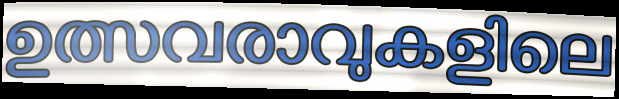
ഉത്സവരാവുകളിലെ